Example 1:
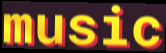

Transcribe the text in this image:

music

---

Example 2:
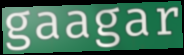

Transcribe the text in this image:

gaagar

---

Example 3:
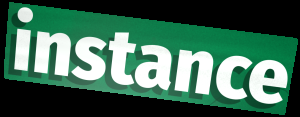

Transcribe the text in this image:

instance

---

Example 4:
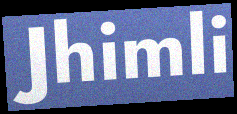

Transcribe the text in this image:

Jhimli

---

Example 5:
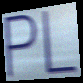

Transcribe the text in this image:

PL